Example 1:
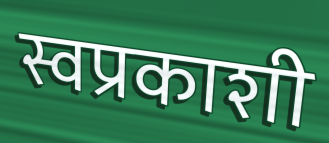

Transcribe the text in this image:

स्वप्रकाशी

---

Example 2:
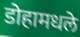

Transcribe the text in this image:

डोहामधले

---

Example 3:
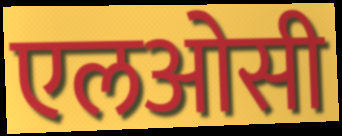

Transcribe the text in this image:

एलओसी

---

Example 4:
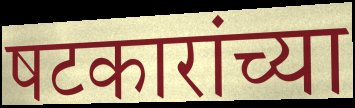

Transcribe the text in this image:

षटकारांच्या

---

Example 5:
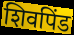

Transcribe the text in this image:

शिवपिंड